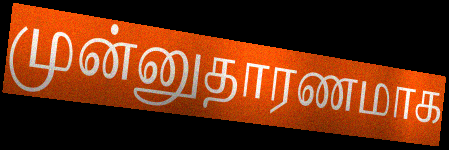
முன்னுதாரணமாக